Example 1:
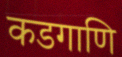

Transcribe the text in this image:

कडगाणि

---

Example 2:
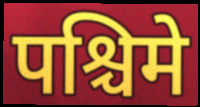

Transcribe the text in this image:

पश्चिमे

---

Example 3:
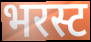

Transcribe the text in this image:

भरस्ट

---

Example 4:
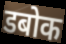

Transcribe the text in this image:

डबोक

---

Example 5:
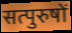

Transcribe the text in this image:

सत्पुरुषों